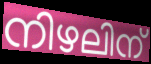
നിഴലിന്